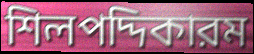
শিলপদ্দিকারম